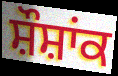
ਸ਼ੌਸ਼ਾਂਕ